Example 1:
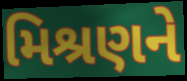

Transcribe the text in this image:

મિશ્રણને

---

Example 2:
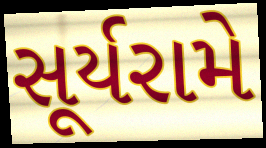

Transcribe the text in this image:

સૂર્યરામે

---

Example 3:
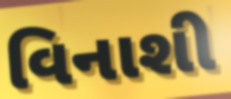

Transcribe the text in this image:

વિનાશી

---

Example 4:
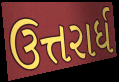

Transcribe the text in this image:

ઉત્તરાર્ધ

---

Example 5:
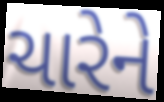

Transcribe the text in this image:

ચારેને